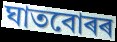
ঘাতবোৰৰ